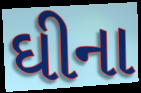
ઘીના